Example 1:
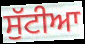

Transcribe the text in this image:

ਸੁੱਟੀਆ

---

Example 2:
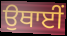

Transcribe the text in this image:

ਉਥਾਈਂ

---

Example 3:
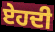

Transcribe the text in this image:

ਏਹਦੀ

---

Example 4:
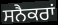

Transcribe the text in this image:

ਸਨੈਕਰਾਂ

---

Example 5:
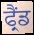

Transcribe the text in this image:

ਫ੍ਰੈਂਡ